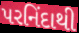
પરનિંદાથી